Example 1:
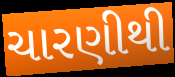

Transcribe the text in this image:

ચારણીથી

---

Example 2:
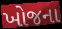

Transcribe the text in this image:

ખોજના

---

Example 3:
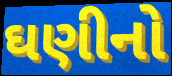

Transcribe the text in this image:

ઘણીનો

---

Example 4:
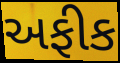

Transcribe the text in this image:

અફીક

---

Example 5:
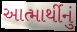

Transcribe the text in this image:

આત્માર્થીનું